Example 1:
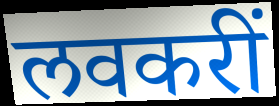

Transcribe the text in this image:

लवकरीं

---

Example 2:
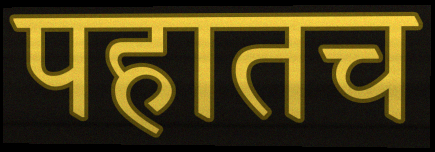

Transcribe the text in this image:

पहातच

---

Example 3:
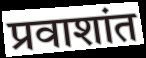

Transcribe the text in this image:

प्रवाशांत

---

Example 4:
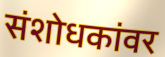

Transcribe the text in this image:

संशोधकांवर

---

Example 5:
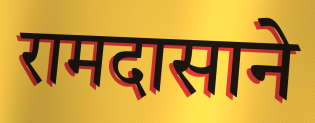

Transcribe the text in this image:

रामदासाने